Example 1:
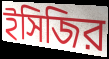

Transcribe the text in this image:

ইসিজির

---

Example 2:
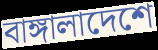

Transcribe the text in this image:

বাঙ্গালাদেশে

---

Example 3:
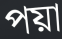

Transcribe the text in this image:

পয়া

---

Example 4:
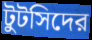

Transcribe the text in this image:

টুটসিদের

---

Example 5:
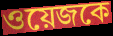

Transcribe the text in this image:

ওয়েজকে